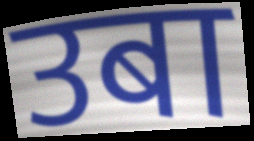
उबा